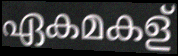
ഏകമകള്